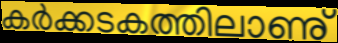
കർക്കടകത്തിലാണു്